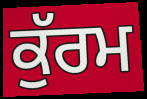
ਕੁੱਰਮ